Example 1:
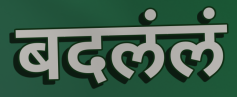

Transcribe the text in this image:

बदलंलं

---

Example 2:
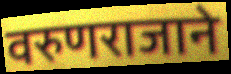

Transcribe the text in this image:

वरुणराजाने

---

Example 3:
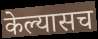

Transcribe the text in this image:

केल्यासच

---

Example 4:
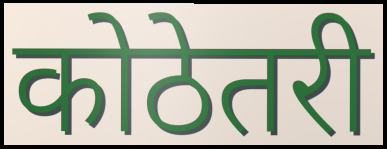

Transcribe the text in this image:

कोठेतरी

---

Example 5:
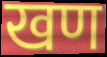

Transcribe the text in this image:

खण